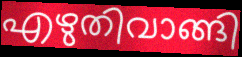
എഴുതിവാങ്ങി